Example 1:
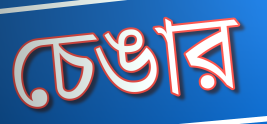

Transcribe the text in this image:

চেঙার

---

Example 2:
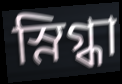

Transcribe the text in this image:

স্নিগ্ধা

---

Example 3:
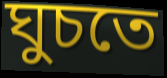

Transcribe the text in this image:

ঘুচতে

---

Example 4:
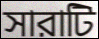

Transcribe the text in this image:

সারাটি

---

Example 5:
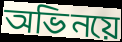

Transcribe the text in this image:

অভিনয়ে